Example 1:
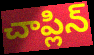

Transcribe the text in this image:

చాప్లిన్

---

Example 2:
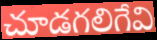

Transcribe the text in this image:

చూడగలిగేవి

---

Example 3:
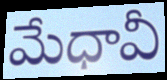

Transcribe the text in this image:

మేధావీ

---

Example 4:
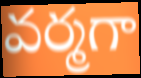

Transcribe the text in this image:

వర్మగా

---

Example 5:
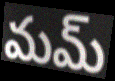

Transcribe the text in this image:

మమ్